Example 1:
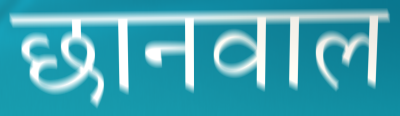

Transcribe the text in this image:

छानवाल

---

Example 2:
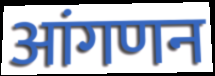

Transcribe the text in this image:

आंगणन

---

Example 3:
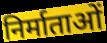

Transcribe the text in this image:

निर्माताओं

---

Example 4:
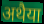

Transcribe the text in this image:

अथैया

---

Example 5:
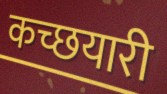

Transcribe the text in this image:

कच्छयारी